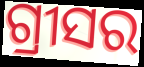
ଗ୍ରୀସର